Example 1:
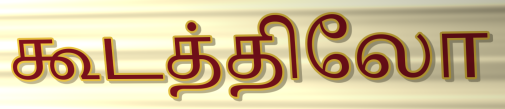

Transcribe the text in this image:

கூடத்திலோ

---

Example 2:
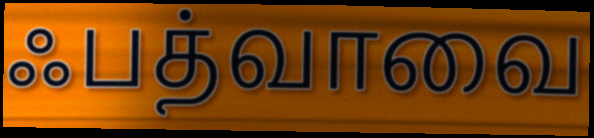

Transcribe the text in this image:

ஃபத்வாவை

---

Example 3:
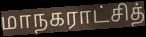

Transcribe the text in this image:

மாநகராட்சித்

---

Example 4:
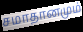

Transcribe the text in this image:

சமாதானமும்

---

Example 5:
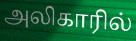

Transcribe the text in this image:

அலிகாரில்